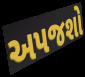
અપજશો